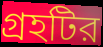
গ্রহটির